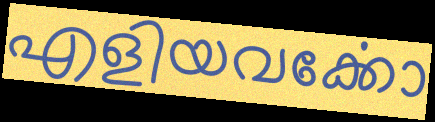
എളിയവൎക്കോ